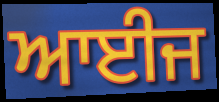
ਆਈਜ